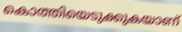
കൊത്തിയെടുക്കുകയാണ്